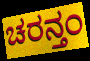
ಚರನ್ತಂ